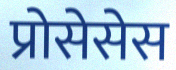
प्रोसेसेस